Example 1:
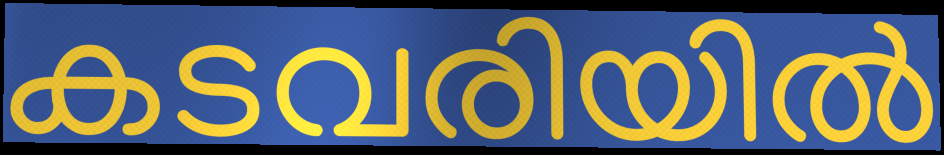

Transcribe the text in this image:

കടവരിയിൽ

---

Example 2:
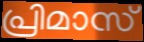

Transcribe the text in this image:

പ്രിമാസ്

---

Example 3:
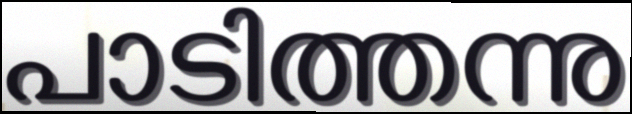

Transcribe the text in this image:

പാടിത്തന്നു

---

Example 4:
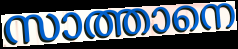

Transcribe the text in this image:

സാത്താനെ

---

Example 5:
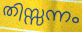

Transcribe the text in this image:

തിസ്സന്നം